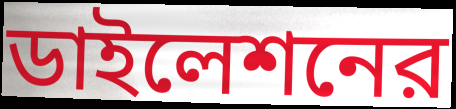
ডাইলেশনের